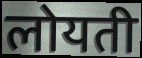
लोयती